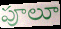
పూలూ